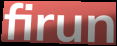
firun